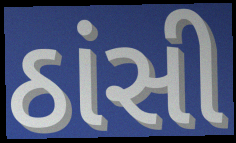
ઠાંસી